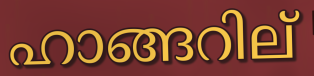
ഹാങ്ങറില്